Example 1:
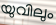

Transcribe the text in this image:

യുവിലും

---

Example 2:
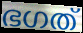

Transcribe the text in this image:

ഭഗത്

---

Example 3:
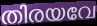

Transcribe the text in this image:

തിരയവേ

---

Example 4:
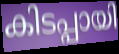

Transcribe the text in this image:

കിടപ്പായി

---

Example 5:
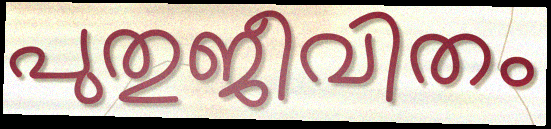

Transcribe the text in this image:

പുതുജീവിതം